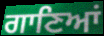
ਗਾਣਿਆਂ